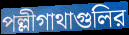
পল্লীগাথাগুলির